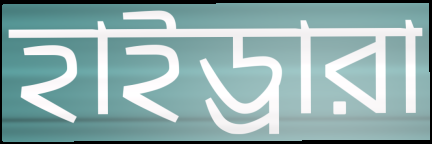
হাইড্রারা